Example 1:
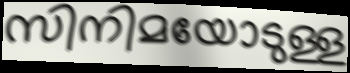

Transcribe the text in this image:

സിനിമയോടുള്ള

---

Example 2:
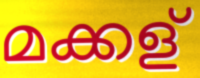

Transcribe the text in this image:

മക്കള്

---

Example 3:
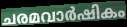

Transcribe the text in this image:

ചരമവാർഷികം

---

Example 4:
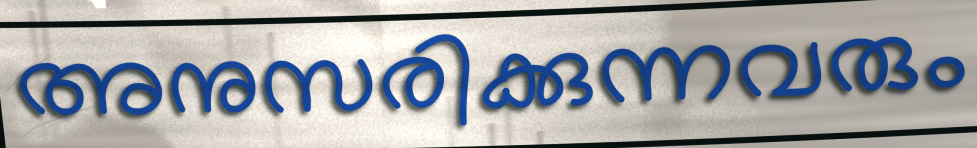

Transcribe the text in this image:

അനുസരിക്കുന്നവരും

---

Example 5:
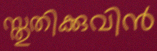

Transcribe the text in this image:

സ്തുതിക്കുവിൻ